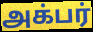
அக்பர்